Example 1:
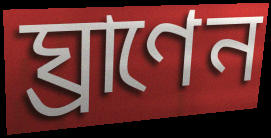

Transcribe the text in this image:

ঘ্রাণেন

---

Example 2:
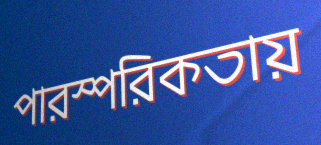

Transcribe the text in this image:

পারস্পরিকতায়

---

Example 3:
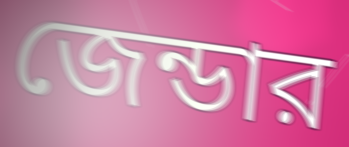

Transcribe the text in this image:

জেন্ডার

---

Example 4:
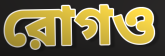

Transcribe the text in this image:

রোগও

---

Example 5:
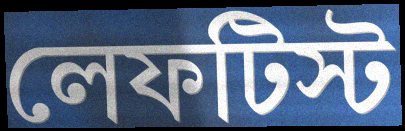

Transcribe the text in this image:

লেফটিস্ট